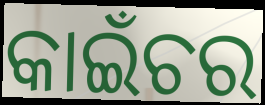
କାଇଁଚର